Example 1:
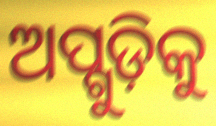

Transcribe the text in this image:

ଅପ୍ଗୁଡ଼ିକୁ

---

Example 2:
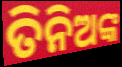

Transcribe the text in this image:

ତିନିଅଙ୍କ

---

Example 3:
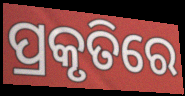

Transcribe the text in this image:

ପ୍ରକୃତିରେ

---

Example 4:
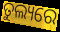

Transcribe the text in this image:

ତୁଲ୍ୟରେ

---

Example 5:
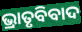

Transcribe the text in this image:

ଭ୍ରାତୃବିବାଦ